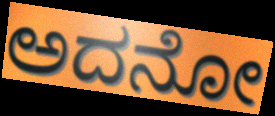
ಅದನೋ